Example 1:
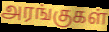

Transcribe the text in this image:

அரங்குகள்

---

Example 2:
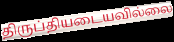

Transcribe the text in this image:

திருப்தியடையவில்லை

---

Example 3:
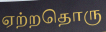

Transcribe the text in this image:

ஏற்றதொரு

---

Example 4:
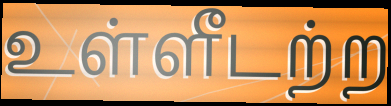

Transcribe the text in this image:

உள்ளீடற்ற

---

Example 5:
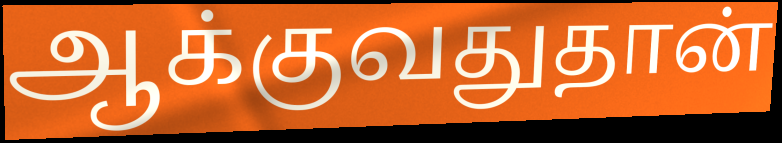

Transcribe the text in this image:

ஆக்குவதுதான்